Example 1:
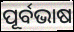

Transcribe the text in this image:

ପୂର୍ବଭାଷ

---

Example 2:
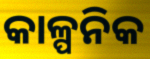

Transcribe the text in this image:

କାଳ୍ପନିକ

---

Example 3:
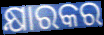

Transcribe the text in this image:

କ୍ଷାରକର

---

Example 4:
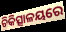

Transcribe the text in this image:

ଚିକିତ୍ସାଳୟରେ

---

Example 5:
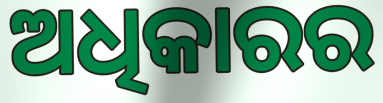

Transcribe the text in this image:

ଅଧିକାରର